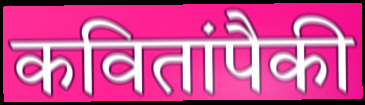
कवितांपैकी